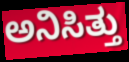
ಅನಿಸಿತ್ತು